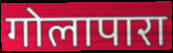
गोलापारा